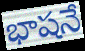
భాషనే